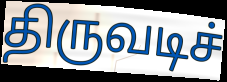
திருவடிச்